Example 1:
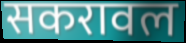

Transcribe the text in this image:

सकरावल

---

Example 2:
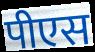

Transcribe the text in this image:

पीएस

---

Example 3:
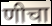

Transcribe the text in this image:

णीचा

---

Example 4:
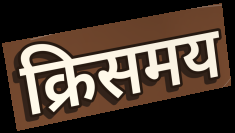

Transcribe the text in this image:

क्रिसमय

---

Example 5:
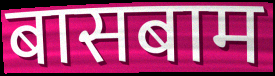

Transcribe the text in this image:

बासबाम